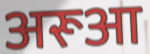
अरूआ